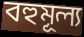
বহুমূল্য